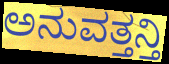
ಅನುವತ್ತನ್ತಿ